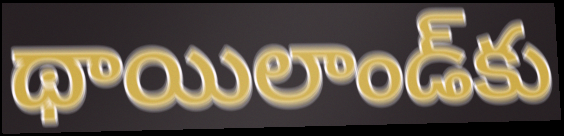
థాయిలాండ్‌కు